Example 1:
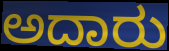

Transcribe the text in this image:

ಅದಾರು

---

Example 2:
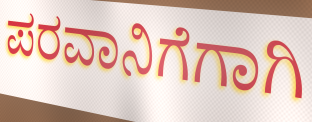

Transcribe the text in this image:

ಪರವಾನಿಗೆಗಾಗಿ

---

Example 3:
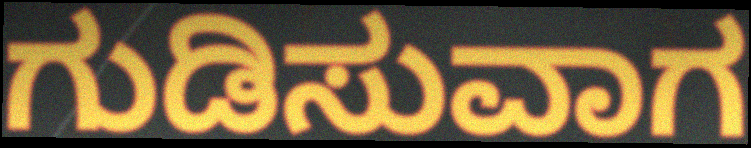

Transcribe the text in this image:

ಗುಡಿಸುವಾಗ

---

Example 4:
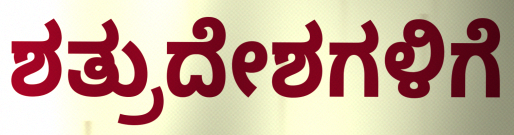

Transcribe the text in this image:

ಶತ್ರುದೇಶಗಳಿಗೆ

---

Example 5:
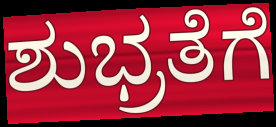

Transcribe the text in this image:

ಶುಭ್ರತೆಗೆ